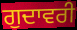
ਗੁਦਾਵਰੀ